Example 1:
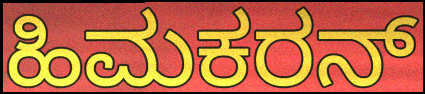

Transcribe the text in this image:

ಹಿಮಕರನ್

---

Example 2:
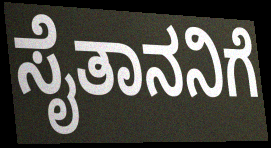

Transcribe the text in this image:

ಸೈತಾನನಿಗೆ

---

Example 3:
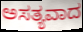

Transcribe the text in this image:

ಅಸತ್ಯವಾದ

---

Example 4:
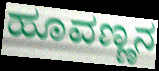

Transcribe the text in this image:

ಹೂವಣ್ಣನ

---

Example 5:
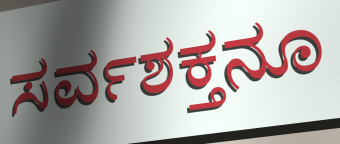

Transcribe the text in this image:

ಸರ್ವಶಕ್ತನೂ